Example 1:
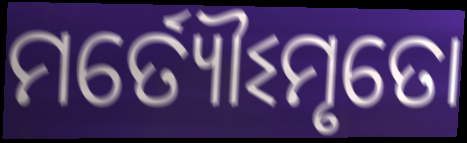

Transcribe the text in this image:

ମର୍ତ୍ୟୌଽମୃତୋ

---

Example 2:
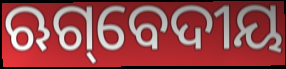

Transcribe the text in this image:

ଋଗ୍‌ବେଦୀୟ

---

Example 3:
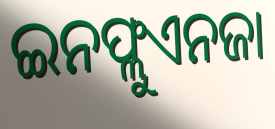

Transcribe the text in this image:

ଇନଫ୍ଲୁଏନଜା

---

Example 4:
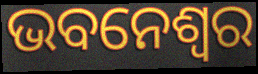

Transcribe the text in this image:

ଭବନେଶ୍ୱର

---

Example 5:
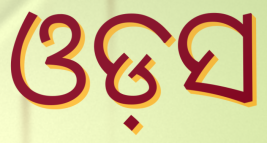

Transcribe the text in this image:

ଓଡ଼ସ